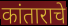
कांताराचे